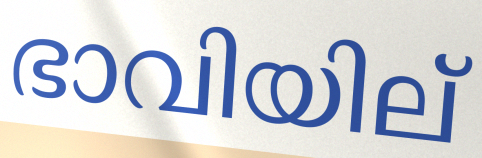
ഭാവിയില്